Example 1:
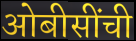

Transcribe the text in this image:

ओबीसींची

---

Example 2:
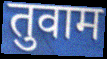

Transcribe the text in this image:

तुवाम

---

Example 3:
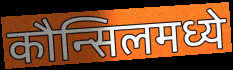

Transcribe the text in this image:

कौन्सिलमध्ये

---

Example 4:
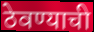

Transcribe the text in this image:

ठेवण्याची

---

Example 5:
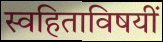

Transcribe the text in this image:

स्वहिताविषयीं